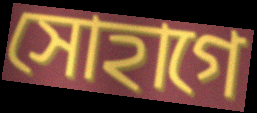
সোহাগে